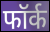
फॉर्क